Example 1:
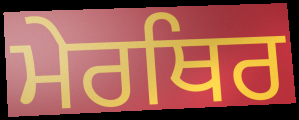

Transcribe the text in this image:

ਮੇਰਥਿਰ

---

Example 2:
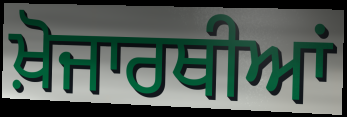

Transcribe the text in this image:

ਖ਼ੋਜਾਰਥੀਆਂ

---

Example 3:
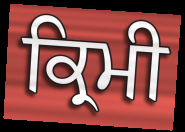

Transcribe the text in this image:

ਕ੍ਰਿਮੀ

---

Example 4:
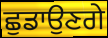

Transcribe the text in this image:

ਛੁਡਾਉਣਗੇ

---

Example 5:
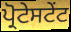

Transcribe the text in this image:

ਪ੍ਰੋਟੇਸਟੇਂਟ